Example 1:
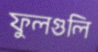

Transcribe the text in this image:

ফুলগুলি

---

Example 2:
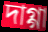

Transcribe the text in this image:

দাগ্গা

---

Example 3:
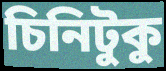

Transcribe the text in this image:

চিনিটুকু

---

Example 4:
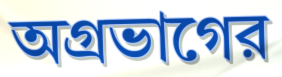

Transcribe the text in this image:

অগ্রভাগের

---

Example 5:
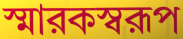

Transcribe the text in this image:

স্মারকস্বরূপ